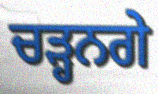
ਚੜ੍ਹਨਗੇ